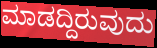
ಮಾಡದ್ದಿರುವುದು